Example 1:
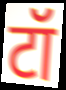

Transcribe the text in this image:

टॉ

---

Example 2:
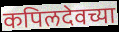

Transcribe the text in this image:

कपिलदेवच्या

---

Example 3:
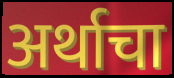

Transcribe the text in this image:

अर्थाचा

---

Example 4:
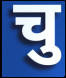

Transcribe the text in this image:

चु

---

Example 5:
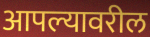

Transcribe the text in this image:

आपल्यावरील